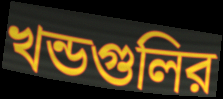
খন্ডগুলির